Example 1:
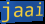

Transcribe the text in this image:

jaai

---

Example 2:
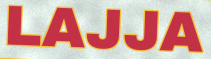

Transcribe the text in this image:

LAJJA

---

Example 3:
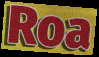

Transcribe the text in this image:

Roa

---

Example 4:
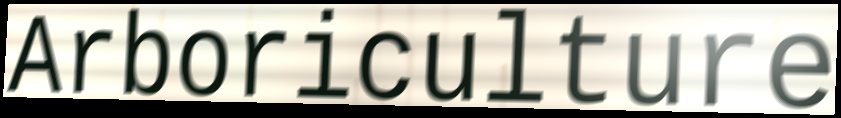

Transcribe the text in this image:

Arboriculture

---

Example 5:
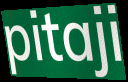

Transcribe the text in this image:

pitaji